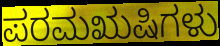
ಪರಮಋಷಿಗಳು